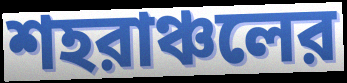
শহরাঞ্চলের